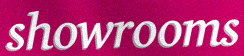
showrooms